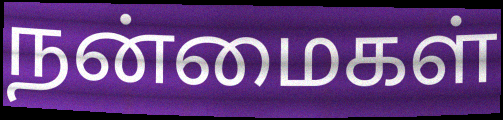
நன்மைகள்